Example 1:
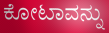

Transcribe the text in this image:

ಕೋಟಾವನ್ನು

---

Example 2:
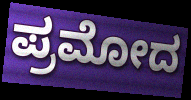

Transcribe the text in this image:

ಪ್ರಮೋದ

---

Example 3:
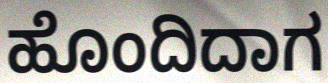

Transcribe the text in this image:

ಹೊಂದಿದಾಗ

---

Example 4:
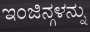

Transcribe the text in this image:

ಇಂಜಿನ್ಗಳನ್ನು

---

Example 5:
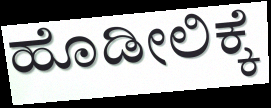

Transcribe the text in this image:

ಹೊಡೀಲಿಕ್ಕೆ